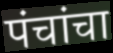
पंचांचा